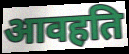
आवहति